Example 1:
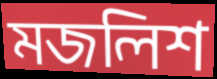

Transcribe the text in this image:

মজলিশ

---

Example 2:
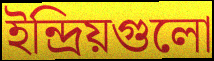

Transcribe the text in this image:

ইন্দ্রিয়গুলো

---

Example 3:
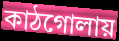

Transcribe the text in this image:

কাঠগোলায়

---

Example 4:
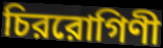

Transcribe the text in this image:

চিররোগিণী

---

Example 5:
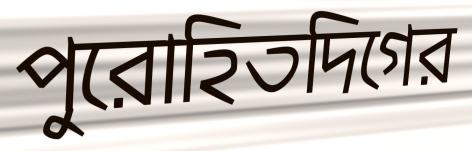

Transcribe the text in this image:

পুরোহিতদিগের